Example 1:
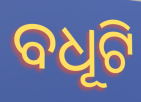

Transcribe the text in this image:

ବଧୂଟି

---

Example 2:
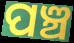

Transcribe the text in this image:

ପଞ୍ଚ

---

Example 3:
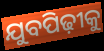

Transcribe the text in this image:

ଯୁବପିଢ଼ୀକୁ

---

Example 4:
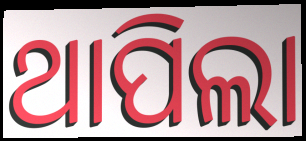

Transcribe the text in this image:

ଥାପିଲା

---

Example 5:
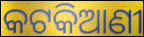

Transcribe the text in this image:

କଟକିଆଣୀ